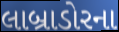
લાબ્રાડોરના